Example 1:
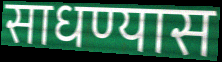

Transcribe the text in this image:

साधण्यास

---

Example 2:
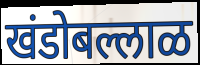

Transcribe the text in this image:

खंडोबल्लाळ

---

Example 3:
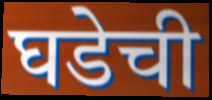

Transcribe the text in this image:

घडेची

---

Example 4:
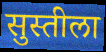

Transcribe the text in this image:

सुस्तीला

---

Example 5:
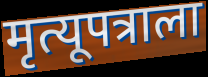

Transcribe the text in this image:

मृत्यूपत्राला